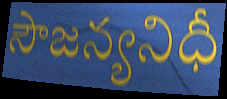
సౌజన్యనిధీ